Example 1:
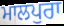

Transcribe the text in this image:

ਮਾਲਪੁਰਾ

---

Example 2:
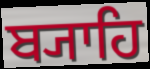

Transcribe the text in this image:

ਬ੍ਯਾਹਿ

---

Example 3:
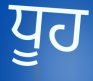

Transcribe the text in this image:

ਧੂਹ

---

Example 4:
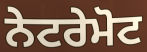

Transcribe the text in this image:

ਨੇਟਰੇਮੋਟ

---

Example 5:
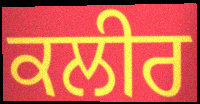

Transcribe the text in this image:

ਕਲੀਰ